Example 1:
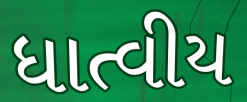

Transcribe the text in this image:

ધાત્વીય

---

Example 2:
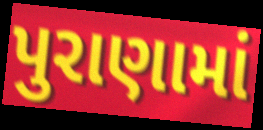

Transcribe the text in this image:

પુરાણામાં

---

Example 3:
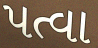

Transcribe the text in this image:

પત્વા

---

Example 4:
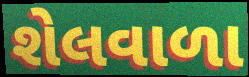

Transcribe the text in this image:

શેલવાળા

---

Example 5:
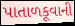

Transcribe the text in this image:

પાતાળકૂવાની